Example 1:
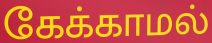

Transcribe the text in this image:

கேக்காமல்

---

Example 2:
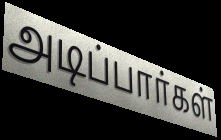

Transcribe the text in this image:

அடிப்பார்கள்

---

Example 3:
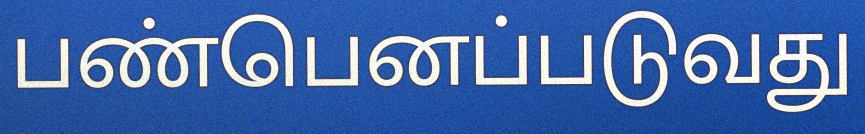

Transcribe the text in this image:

பண்பெனப்படுவது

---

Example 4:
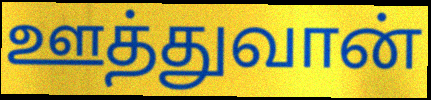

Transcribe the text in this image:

ஊத்துவான்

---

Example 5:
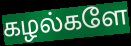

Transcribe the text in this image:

கழல்களே